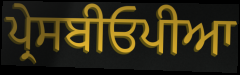
ਪ੍ਰੇਸਬੀਓਪੀਆ